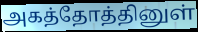
அகத்தோத்தினுள்